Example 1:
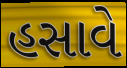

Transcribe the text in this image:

હસાવે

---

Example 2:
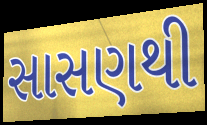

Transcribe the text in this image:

સાસણથી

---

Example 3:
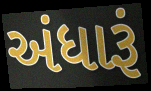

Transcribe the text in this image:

અંધારૂં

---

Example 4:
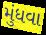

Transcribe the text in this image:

મુંધવા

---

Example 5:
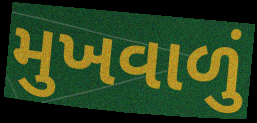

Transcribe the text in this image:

મુખવાળું